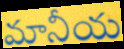
మానీయ